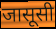
जासूसी